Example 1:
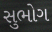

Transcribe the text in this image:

સુભોગ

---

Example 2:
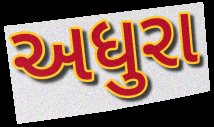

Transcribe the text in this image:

અધુરા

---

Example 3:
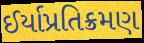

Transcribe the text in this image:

ઈર્યાપ્રતિક્રમણ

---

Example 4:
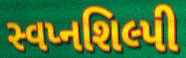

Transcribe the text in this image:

સ્વપ્નશિલ્પી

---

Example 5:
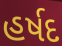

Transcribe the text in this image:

હર્ષદ